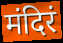
मंदिरं